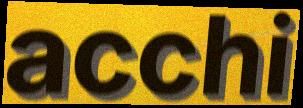
acchi